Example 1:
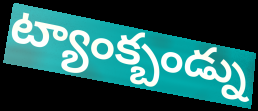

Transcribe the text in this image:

ట్యాంక్బండ్ను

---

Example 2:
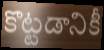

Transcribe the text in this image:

కొట్టడానికీ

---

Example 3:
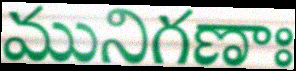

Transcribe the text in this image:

మునిగణాః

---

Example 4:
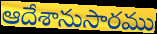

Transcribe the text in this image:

ఆదేశానుసారము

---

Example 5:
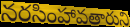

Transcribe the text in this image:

నరసింహావతారుని